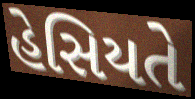
હેસિયતે